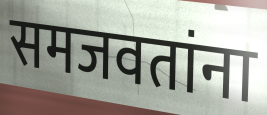
समजवतांना